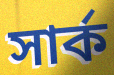
সার্ক